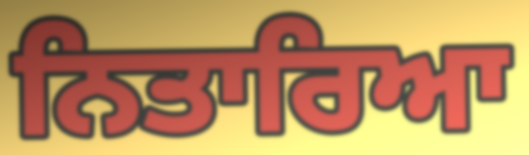
ਨਿਤਾਰਿਆ